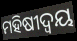
ମହିଷୀଦ୍ୱୟ